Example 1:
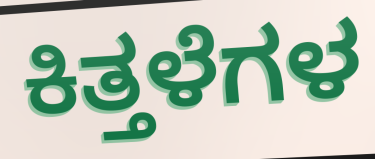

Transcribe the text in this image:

ಕಿತ್ತಳೆಗಳ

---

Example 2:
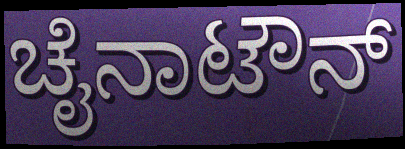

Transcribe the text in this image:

ಚೈನಾಟೌನ್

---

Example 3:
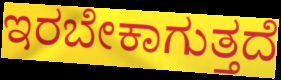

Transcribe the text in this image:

ಇರಬೇಕಾಗುತ್ತದೆ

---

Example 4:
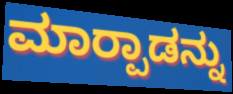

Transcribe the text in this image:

ಮಾರ‍್ಪಾಡನ್ನು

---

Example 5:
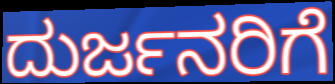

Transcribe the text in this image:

ದುರ್ಜನರಿಗೆ